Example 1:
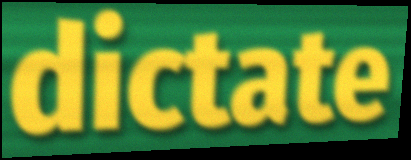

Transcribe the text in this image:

dictate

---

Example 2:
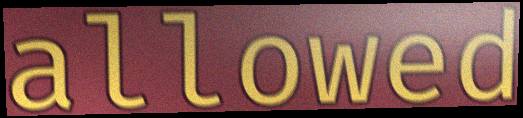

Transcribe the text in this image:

allowed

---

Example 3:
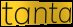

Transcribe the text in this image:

tanta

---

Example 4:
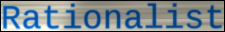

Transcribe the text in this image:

Rationalist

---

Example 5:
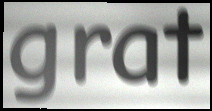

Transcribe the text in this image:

grat